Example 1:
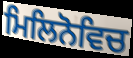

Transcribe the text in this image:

ਮਿਲਿਨੋਵਿਚ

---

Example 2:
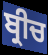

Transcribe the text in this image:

ਬ੍ਰੀਚ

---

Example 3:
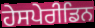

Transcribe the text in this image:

ਹੇਸਪੇਰੀਡਿਨ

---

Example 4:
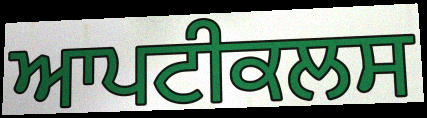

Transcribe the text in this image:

ਆਪਟੀਕਲਸ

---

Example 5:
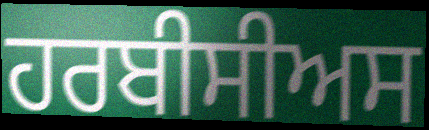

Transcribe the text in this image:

ਹਰਬੀਸੀਅਸ